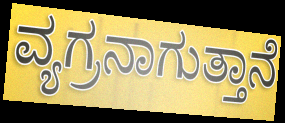
ವ್ಯಗ್ರನಾಗುತ್ತಾನೆ